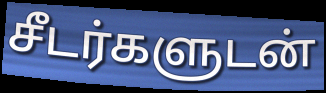
சீடர்களுடன்